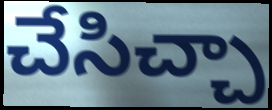
చేసిచ్చా